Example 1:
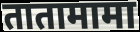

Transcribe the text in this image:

तातामामा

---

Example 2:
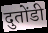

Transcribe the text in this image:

दुतोंडी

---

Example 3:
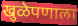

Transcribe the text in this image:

खुळेपणाला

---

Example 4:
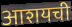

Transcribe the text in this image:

आशयची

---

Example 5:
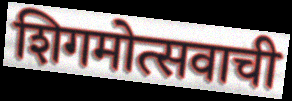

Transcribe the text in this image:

शिगमोत्सवाची